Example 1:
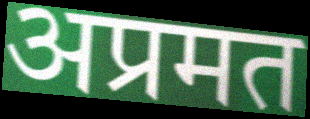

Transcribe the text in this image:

अप्रमत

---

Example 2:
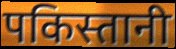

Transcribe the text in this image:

पकिस्तानी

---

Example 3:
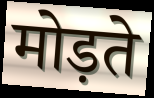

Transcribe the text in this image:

मोड़ते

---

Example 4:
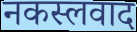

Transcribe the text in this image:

नकस्लवाद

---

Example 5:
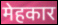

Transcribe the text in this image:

मेहकार